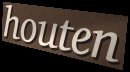
houten